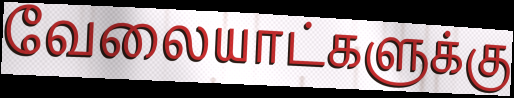
வேலையாட்களுக்கு